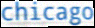
chicago